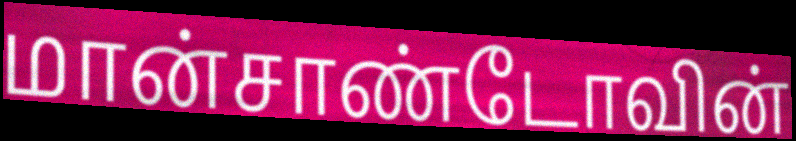
மான்சாண்டோவின்